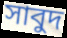
সাবুদ